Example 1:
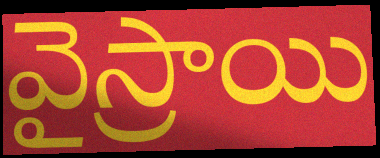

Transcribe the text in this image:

వైస్రాయి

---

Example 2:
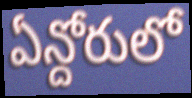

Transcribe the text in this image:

ఏన్దోరులో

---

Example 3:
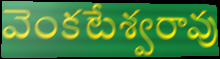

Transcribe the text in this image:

వెంకటేశ్వరావు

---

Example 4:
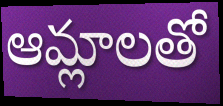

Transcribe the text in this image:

ఆమ్లాలతో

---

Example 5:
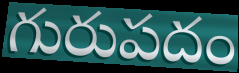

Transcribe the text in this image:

గురుపదం